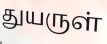
துயருள்